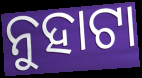
ନୁହାଟା